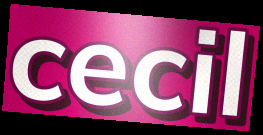
cecil